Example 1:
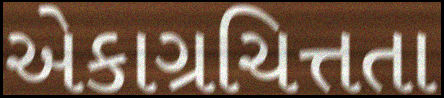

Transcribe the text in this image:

એકાગ્રચિત્તતા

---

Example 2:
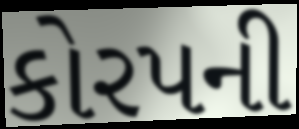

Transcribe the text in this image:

કોરપની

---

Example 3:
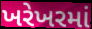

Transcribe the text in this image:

ખરેખરમાં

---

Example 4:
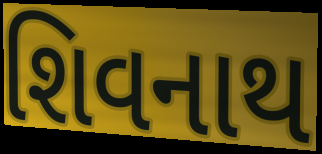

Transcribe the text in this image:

શિવનાથ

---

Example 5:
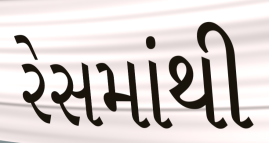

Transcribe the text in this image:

રેસમાંથી